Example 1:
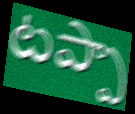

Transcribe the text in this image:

టప్పా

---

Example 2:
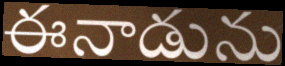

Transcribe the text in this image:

ఈనాడును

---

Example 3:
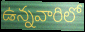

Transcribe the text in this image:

ఉన్నవారిలో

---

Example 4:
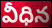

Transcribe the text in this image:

వీధిన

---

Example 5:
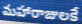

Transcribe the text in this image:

మహారాజులకే